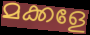
മക്കളേ